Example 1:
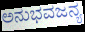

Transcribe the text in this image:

ಅನುಭವಜನ್ಯ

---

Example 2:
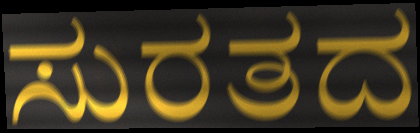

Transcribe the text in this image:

ಸುರತದ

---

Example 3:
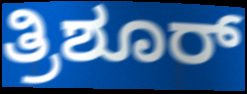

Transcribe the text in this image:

ತ್ರಿಶೂರ್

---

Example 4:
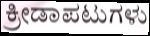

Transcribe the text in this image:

ಕ್ರೀಡಾಪಟುಗಳು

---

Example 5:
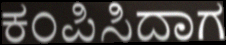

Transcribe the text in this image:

ಕಂಪಿಸಿದಾಗ